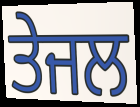
ਤੇਜਲ